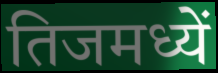
तिजमध्यें